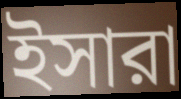
ইসারা